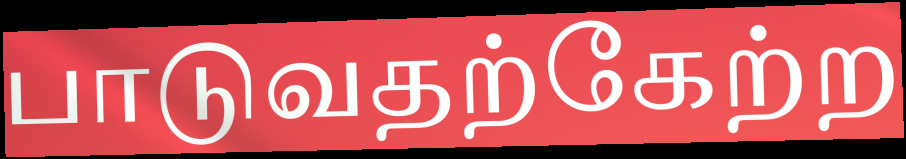
பாடுவதற்கேற்ற